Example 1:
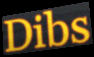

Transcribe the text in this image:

Dibs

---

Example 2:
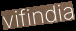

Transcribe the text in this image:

vifindia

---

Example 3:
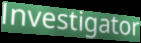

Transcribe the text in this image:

Investigator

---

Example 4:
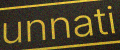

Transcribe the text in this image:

unnati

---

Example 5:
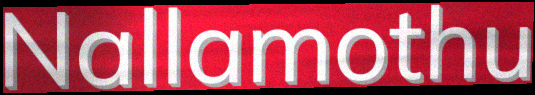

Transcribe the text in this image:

Nallamothu